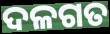
ଦଳଗତ